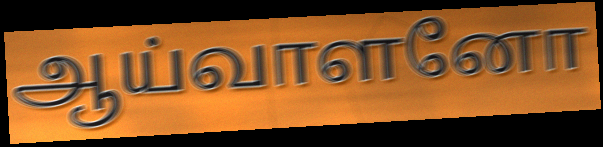
ஆய்வாளனோ